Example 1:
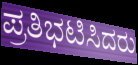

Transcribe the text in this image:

ಪ್ರತಿಭಟಿಸಿದರು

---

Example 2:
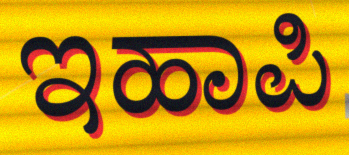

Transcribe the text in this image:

ಇಹಾಪಿ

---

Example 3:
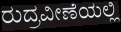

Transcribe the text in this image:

ರುದ್ರವೀಣೆಯಲ್ಲಿ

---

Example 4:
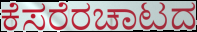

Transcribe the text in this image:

ಕೆಸರೆರಚಾಟದ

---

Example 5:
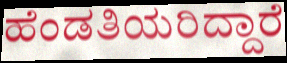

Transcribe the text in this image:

ಹೆಂಡತಿಯರಿದ್ದಾರೆ